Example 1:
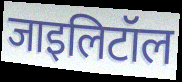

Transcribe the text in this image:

जाइलिटॉल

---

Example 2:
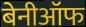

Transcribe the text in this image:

बेनीऑफ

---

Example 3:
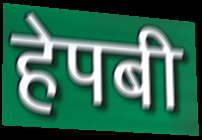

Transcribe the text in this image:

हेपबी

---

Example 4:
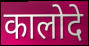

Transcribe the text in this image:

कालोदे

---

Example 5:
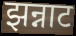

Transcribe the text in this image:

झन्नाट